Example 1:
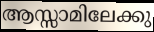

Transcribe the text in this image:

ആസ്സാമിലേക്കു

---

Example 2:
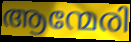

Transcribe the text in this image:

ആന്മേരി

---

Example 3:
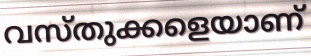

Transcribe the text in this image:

വസ്തുക്കളെയാണ്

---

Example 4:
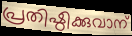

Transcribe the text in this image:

പ്രതിഷ്ഠിക്കുവാന്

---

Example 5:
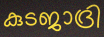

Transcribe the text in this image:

കുടജാദ്രി